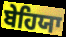
ਬੇਹਿਯਾ